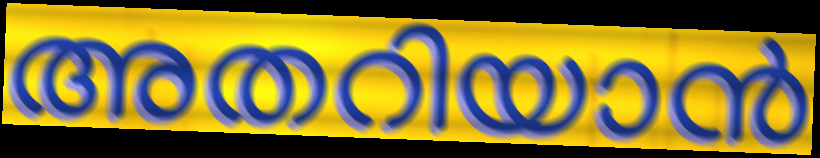
അതറിയാൻ